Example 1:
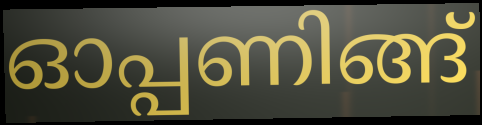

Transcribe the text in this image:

ഓപ്പണിങ്ങ്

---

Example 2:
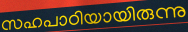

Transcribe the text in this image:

സഹപാഠിയായിരുന്നു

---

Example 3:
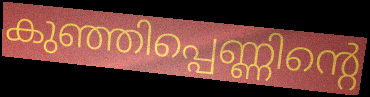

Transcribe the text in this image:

കുഞ്ഞിപ്പെണ്ണിന്റെ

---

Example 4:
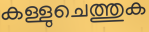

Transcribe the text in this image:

കള്ളുചെത്തുക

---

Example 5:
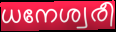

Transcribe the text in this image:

ധനേശ്വരീ